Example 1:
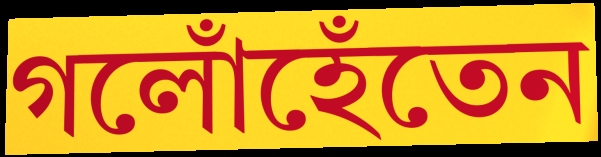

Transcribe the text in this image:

গলোঁহেঁতেন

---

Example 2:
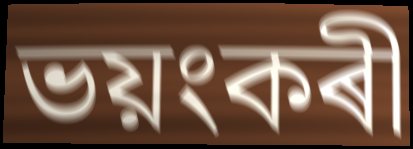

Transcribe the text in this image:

ভয়ংকৰী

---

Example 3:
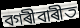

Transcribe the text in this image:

বগৰীবাৰীত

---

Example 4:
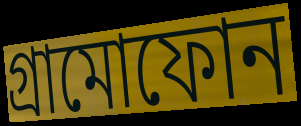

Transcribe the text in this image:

গ্ৰামোফোন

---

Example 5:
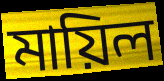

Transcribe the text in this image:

মায়িল